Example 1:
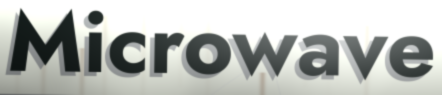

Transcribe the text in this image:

Microwave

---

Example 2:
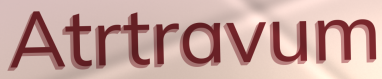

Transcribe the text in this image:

Atrtravum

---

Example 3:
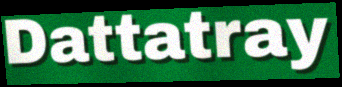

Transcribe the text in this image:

Dattatray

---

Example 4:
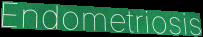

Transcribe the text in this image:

Endometriosis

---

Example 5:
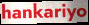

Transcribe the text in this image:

hankariyo